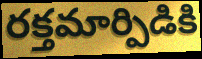
రక్తమార్పిడికి